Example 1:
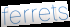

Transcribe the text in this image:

ferrets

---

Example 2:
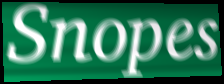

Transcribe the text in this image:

Snopes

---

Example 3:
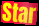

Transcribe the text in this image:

Star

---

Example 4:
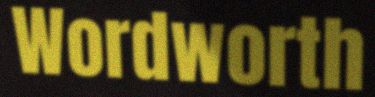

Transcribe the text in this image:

Wordworth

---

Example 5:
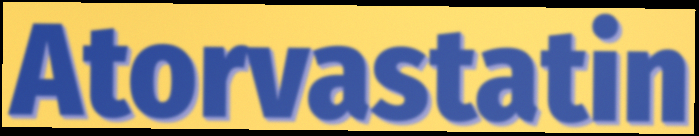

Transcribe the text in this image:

Atorvastatin